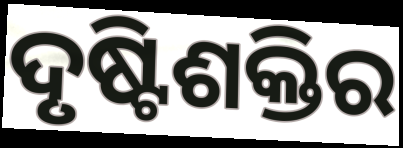
ଦୃଷ୍ଟିଶକ୍ତିର